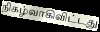
நிகழ்வாகிவிட்டது